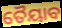
ତୈୟାବ